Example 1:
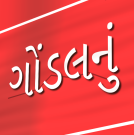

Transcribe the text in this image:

ગોંડલનું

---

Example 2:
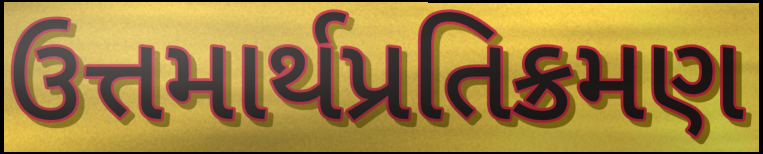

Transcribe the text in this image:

ઉત્તમાર્થપ્રતિક્રમણ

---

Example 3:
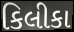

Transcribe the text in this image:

કિલીકા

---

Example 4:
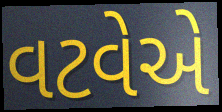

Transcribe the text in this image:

વટવેએ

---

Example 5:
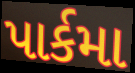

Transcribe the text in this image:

પાર્કમા